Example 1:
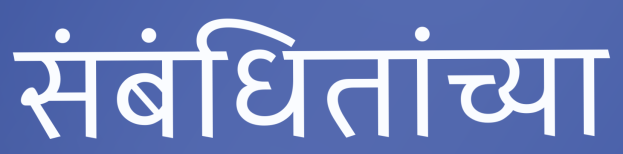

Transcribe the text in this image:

संबंधितांच्या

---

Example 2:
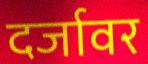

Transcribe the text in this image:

दर्जावर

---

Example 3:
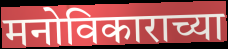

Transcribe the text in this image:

मनोविकाराच्या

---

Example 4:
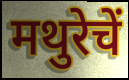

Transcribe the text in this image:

मथुरेचें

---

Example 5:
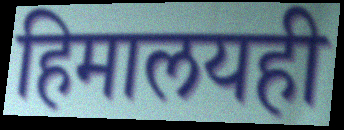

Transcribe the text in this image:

हिमालयही